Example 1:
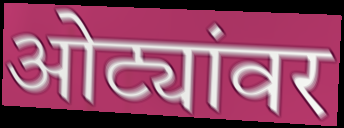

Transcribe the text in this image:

ओट्यांवर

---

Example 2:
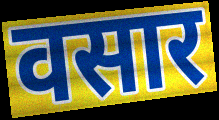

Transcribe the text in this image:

वसार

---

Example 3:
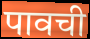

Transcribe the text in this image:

पावची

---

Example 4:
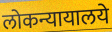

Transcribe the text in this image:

लोकन्यायालये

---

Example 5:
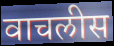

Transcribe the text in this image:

वाचलीस